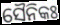
ସୈନିକଃ